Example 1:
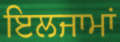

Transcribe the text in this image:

ਇਲਜਾਮਾਂ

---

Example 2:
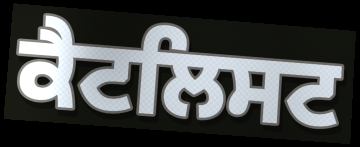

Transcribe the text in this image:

ਕੈਟਲਿਸਟ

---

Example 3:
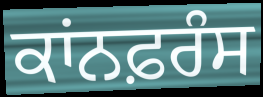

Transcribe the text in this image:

ਕਾਂਨਫ਼ਰੰਸ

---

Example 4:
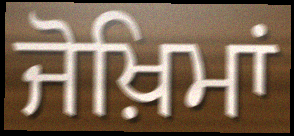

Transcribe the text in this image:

ਜੋਖ਼ਿਮਾਂ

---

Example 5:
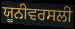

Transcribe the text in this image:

ਯੂਨੀਵਰਸਲੀ